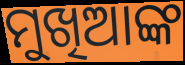
ମୁଖିଆଙ୍କ